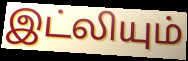
இட்லியும்